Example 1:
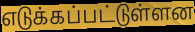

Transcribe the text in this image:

எடுக்கப்பட்டுள்ளன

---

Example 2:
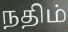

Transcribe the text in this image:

நதிம்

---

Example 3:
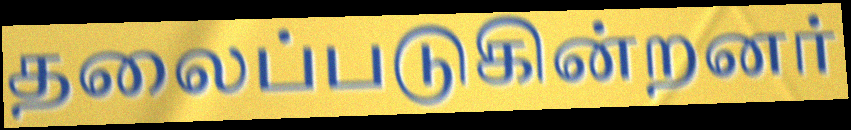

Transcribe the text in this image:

தலைப்படுகின்றனர்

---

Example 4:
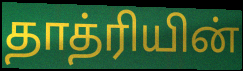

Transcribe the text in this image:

தாத்ரியின்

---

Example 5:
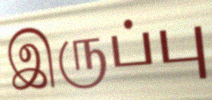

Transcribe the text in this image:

இருப்பு